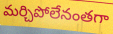
మర్చిపోలేనంతగా